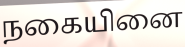
நகையினை